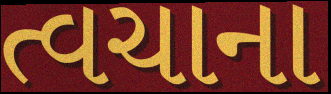
ત્વચાના